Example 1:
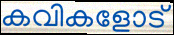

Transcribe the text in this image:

കവികളോട്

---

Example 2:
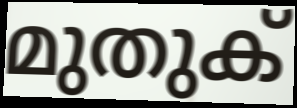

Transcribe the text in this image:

മുതുക്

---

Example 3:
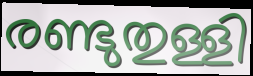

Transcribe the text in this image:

രണ്ടുതുള്ളി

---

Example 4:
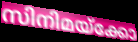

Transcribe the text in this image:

സിനിമയ്ക്കോ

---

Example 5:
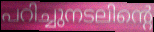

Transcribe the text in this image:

പറിച്ചുനടലിന്റെ